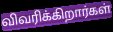
விவரிக்கிறார்கள்